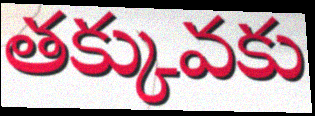
తక్కువకు